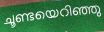
ചൂണ്ടയെറിഞ്ഞു